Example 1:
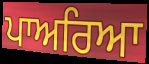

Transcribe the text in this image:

ਪਾਅਰਿਆ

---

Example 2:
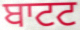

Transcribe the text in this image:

ਬਾਟਟ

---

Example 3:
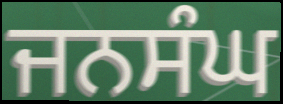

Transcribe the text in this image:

ਜਨਸੰਘ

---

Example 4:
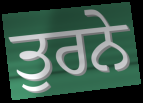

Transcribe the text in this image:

ਤੁਰਨੇ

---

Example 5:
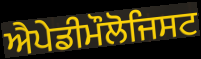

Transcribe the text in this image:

ਐਪੇਡੀਮੌਲੋਜਿਸਟ